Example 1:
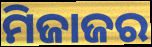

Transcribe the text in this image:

ମିଜାଜର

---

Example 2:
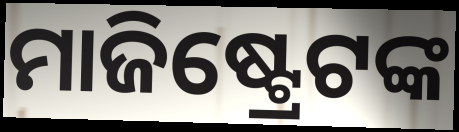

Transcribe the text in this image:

ମାଜିଷ୍ଟ୍ରେଟଙ୍କ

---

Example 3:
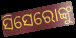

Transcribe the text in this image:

ସିସେରୋଙ୍କୁ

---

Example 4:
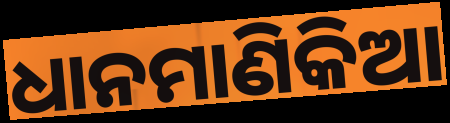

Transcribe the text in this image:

ଧାନମାଣିକିଆ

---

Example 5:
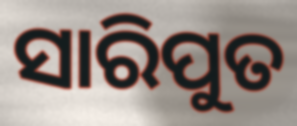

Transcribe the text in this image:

ସାରିପୁତ